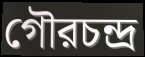
গৌরচন্দ্র